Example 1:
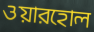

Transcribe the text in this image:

ওয়ারহোল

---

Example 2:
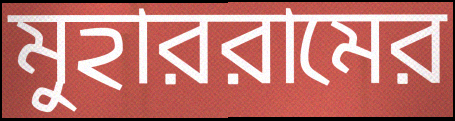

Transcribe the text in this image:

মুহাররামের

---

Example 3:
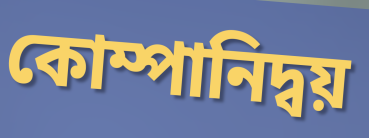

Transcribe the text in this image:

কোম্পানিদ্বয়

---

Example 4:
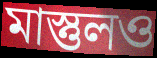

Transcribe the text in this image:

মাস্তুলও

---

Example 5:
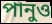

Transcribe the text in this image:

পানুও